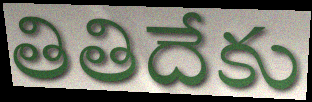
తితిదేకు